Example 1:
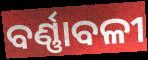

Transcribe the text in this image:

ବର୍ଣ୍ଣାବଳୀ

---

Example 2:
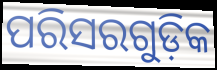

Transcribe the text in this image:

ପରିସରଗୁଡ଼ିକ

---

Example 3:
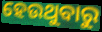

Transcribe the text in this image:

ହେଉଥୁବାରୁ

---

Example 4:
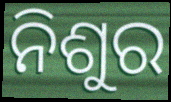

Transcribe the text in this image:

ନିଶୁର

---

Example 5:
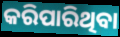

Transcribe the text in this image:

କରିପାରିଥିବା